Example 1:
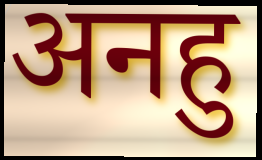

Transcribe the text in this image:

अनहु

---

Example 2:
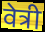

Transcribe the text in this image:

वेत्री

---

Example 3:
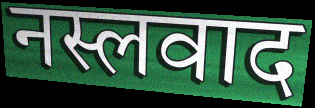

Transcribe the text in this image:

नस्लवाद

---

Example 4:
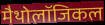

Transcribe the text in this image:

मैथोलॉजिकल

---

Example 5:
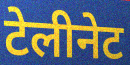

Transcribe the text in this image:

टेलीनेट